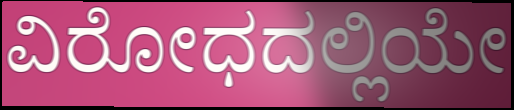
ವಿರೋಧದಲ್ಲಿಯೇ